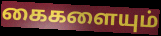
கைகளையும்